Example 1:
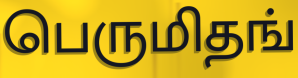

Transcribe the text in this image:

பெருமிதங்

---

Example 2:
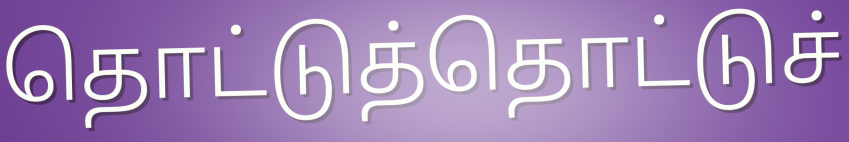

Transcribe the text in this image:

தொட்டுத்தொட்டுச்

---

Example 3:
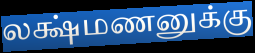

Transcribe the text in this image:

லக்ஷ்மணனுக்கு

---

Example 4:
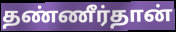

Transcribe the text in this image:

தண்ணீர்தான்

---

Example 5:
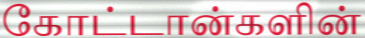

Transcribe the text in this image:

கோட்டான்களின்